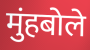
मुंहबोले